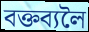
বক্তব্যলৈ